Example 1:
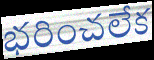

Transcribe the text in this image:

భరించలేక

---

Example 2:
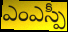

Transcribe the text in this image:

ఎంఎస్పీ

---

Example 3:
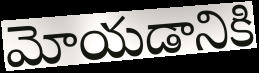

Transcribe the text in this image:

మోయడానికి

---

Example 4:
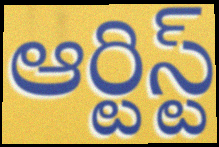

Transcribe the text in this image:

ఆర్టిస్ట్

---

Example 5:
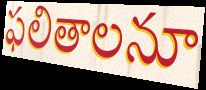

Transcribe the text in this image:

ఫలితాలనూ